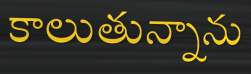
కాలుతున్నాను